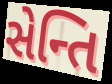
સેન્તિ